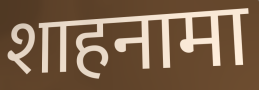
शाहनामा